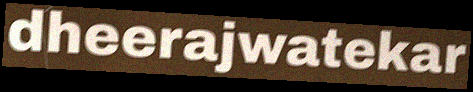
dheerajwatekar